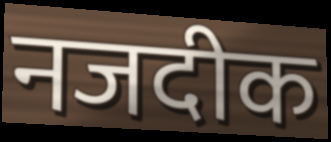
नजदीक